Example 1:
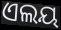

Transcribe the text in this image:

ଏଲୟ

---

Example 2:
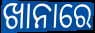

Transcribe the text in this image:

ଖାନାରେ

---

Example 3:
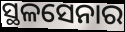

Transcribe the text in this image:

ସ୍ଥଳସେନାର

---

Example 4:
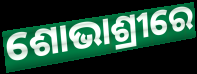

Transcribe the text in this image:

ଶୋଭାଶ୍ରୀରେ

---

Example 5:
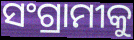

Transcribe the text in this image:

ସଂଗ୍ରାମୀକୁ